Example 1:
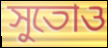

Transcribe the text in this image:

সুতোও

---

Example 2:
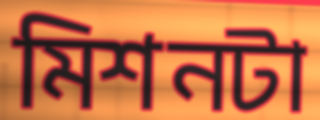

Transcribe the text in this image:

মিশনটা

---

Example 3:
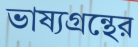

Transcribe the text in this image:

ভাষ্যগ্রন্থের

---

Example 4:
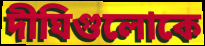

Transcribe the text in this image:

দীঘিগুলোকে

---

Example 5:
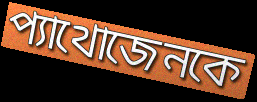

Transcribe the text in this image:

প্যাথোজেনকে